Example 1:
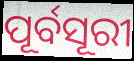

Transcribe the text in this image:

ପୂର୍ବସୂରୀ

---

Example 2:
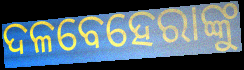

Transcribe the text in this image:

ଦଳବେହେରାଙ୍କୁ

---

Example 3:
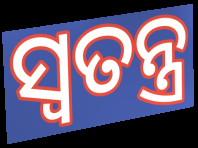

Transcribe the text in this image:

ସ୍ୱତନ୍ତ୍ର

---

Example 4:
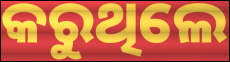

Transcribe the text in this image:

କରୁଥିଲେ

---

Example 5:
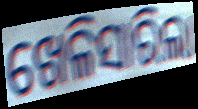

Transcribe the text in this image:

ଖେଳିସାରିଲା